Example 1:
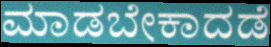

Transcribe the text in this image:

ಮಾಡಬೇಕಾದಡೆ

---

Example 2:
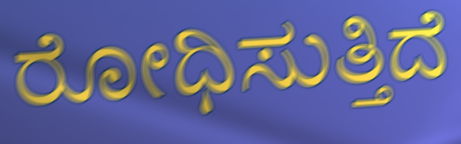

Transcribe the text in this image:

ರೋಧಿಸುತ್ತಿದೆ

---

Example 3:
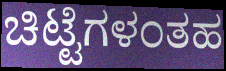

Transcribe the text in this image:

ಚಿಟ್ಟೆಗಳಂತಹ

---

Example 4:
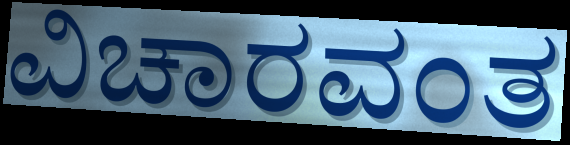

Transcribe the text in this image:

ವಿಚಾರವಂತ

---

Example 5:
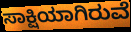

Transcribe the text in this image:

ಸಾಕ್ಷಿಯಾಗಿರುವೆ